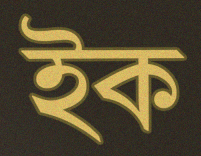
ইক